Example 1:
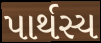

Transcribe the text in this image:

પાર્થસ્ય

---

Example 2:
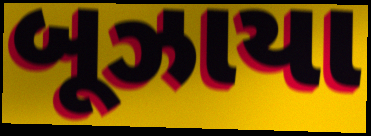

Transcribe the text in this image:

બૂઝાયા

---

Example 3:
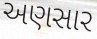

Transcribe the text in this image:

અણસાર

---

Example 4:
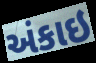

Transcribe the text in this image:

અંકાઇ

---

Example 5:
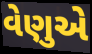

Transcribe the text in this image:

વેણુએ